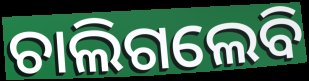
ଚାଲିଗଲେବି